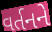
વર્તનને